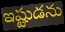
ఇష్టుడను